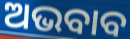
ଅଭବାବ